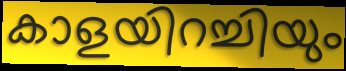
കാളയിറച്ചിയും